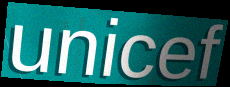
unicef